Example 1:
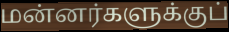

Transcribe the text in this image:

மன்னர்களுக்குப்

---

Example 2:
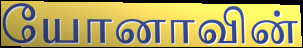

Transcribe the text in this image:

யோனாவின்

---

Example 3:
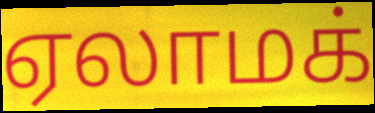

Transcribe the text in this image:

ஏலாமக்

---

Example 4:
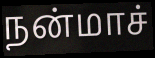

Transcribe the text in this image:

நன்மாச்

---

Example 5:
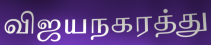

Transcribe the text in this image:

விஜயநகரத்து